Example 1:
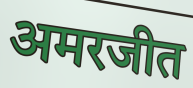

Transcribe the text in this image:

अमरजीत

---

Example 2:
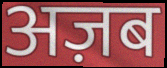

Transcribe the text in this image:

अज़ब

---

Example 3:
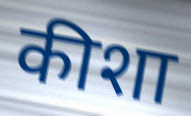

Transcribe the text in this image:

कीशा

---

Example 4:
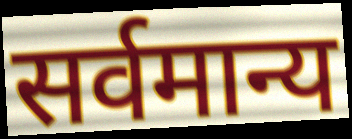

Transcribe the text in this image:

सर्वमान्य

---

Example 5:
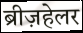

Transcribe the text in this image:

ब्रीज़हेलर